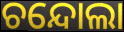
ଚନ୍ଦୋଲା